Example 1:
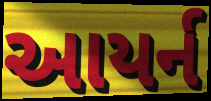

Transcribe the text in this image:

આયર્ન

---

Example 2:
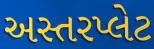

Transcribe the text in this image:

અસ્તરપ્લેટ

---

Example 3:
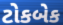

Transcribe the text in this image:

ટોકબેક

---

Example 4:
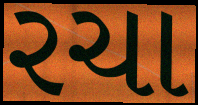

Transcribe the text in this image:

રચા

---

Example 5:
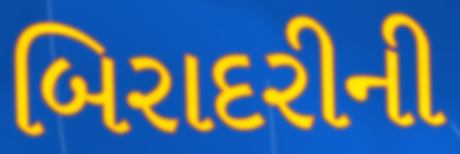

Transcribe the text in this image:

બિરાદરીની